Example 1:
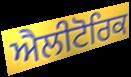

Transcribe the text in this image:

ਐਲੀਟੋਰਿਕ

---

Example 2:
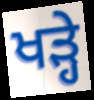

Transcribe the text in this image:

ਖਡ਼੍ਹੇ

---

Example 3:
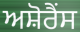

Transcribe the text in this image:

ਅਸ਼ੋਰੈਂਸ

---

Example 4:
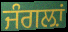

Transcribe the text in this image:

ਜੰਗਲ਼ਾਂ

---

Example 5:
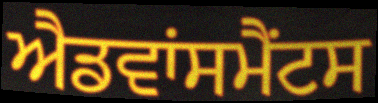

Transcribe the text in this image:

ਐਡਵਾਂਸਮੈਂਟਸ